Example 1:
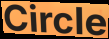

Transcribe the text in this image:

Circle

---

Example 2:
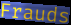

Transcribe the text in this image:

Frauds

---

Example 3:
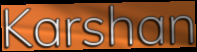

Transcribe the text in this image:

Karshan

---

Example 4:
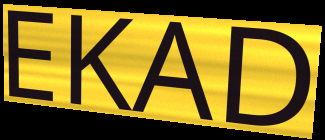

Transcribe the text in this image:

EKAD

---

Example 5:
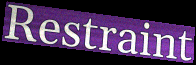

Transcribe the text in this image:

Restraint